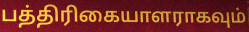
பத்திரிகையாளராகவும்